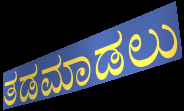
ತಡಮಾಡಲು